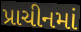
પ્રાચીનમાં